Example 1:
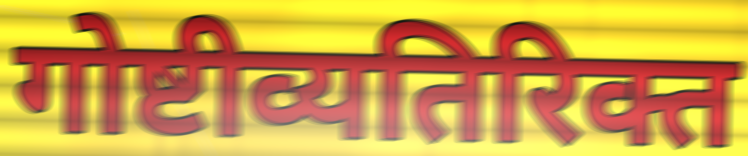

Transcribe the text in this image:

गोष्टीव्यतिरिक्त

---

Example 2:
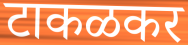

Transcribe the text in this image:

टाकळकर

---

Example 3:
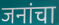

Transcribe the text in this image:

जनांचा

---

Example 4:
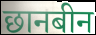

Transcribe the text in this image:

छानबीन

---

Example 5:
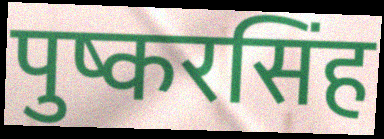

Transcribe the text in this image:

पुष्करसिंह